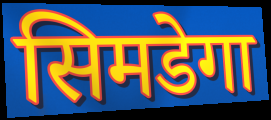
सिमडेगा